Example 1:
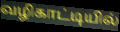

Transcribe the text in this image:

வழிகாட்டியில்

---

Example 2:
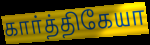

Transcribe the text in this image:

கார்த்திகேயா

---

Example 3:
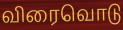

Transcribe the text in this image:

விரைவொடு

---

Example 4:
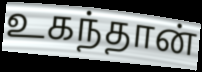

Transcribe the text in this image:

உகந்தான்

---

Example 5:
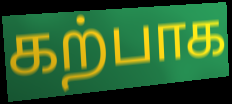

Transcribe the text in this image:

கற்பாக